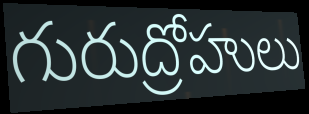
గురుద్రోహులు